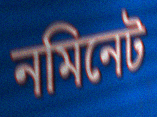
নমিনেট